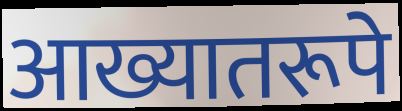
आख्यातरूपे